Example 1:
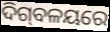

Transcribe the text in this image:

ଦିଗ୍‌ବଳୟରେ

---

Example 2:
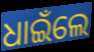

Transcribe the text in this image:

ଧାଇଁଲେ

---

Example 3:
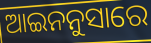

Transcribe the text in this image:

ଆଇନନୁସାରେ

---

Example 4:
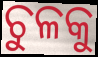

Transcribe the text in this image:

ଚୁଳକୁ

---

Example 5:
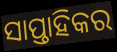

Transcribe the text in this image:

ସାପ୍ତାହିକର